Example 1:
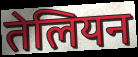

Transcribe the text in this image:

तेलियन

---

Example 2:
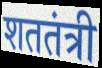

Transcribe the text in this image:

शततंत्री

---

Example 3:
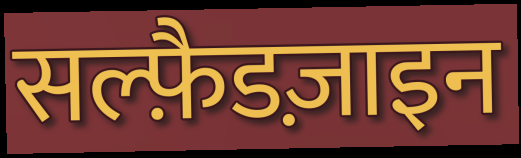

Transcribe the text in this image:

सल्फ़ैडज़ाइन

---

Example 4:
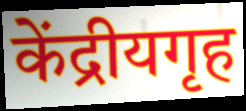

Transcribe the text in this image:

केंद्रीयगृह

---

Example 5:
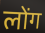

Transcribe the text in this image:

लोंग